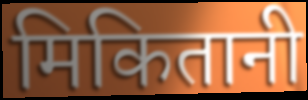
मिकितानी